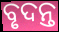
ବୃଦନ୍ତ